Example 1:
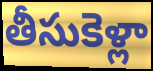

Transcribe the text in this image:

తీసుకెళ్లా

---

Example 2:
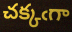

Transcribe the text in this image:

చక్కఁగా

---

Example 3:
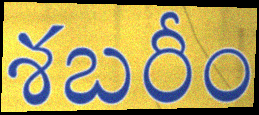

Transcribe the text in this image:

శబరీం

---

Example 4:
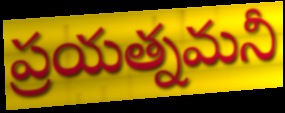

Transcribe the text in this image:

ప్రయత్నమనీ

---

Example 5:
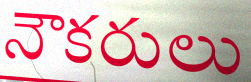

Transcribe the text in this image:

నౌకరులు